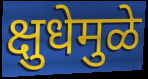
क्षुधेमुळे